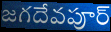
జగదేవపూర్